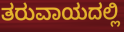
ತರುವಾಯದಲ್ಲಿ